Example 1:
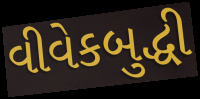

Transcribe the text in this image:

વીવેકબુદ્ધી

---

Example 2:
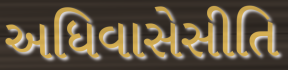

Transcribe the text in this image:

અધિવાસેસીતિ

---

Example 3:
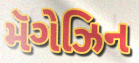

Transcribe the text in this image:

મૅગેઝિન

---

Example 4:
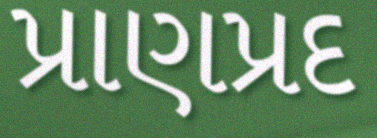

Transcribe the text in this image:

પ્રાણપ્રદ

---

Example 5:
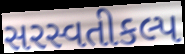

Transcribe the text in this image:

સરસ્વતીકલ્પ